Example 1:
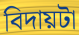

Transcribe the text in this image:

বিদায়টা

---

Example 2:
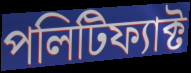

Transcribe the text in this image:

পলিটিফ্যাক্ট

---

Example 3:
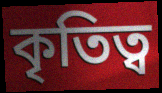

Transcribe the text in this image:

কৃতিত্ব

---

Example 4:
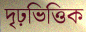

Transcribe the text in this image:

দৃঢ়ভিত্তিক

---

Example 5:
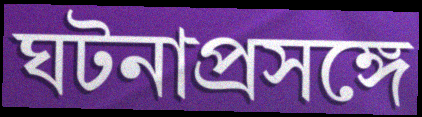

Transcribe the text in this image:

ঘটনাপ্রসঙ্গে